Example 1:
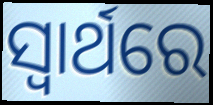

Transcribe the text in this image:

ସ୍ବାର୍ଥରେ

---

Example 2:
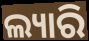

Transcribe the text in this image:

ଲ୍ୟାରି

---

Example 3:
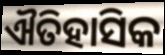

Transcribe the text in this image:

ଐତିହାସିକ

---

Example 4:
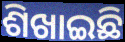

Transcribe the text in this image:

ଶିଖାଇଛି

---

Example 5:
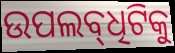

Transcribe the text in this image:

ଉପଲବ୍‌ଧିଟିକୁ